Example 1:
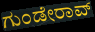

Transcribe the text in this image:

ಗುಂಡೇರಾವ್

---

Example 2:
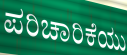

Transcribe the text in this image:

ಪರಿಚಾರಿಕೆಯು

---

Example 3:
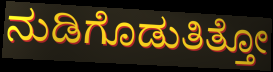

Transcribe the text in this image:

ನುಡಿಗೊಡುತಿತ್ತೋ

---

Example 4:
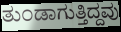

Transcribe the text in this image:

ತುಂಡಾಗುತ್ತಿದ್ದವು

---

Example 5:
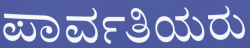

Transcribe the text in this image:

ಪಾರ್ವತಿಯರು